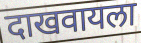
दाखवायला